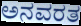
ಅನವರತ